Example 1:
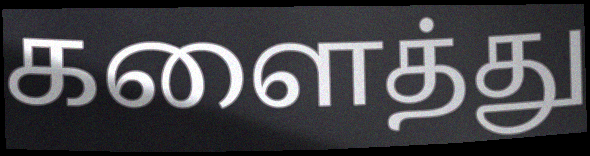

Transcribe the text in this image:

களைத்து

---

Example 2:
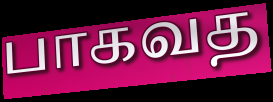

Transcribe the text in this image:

பாகவத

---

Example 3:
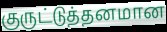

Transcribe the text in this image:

குருட்டுத்தனமான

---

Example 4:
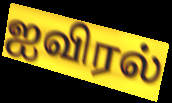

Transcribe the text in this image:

ஐவிரல்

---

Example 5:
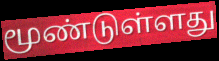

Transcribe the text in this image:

மூண்டுள்ளது